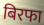
बिरफा